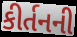
કીર્તનની